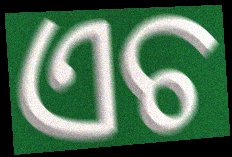
ଏଚ